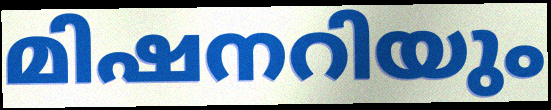
മിഷനറിയും